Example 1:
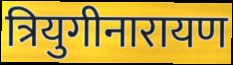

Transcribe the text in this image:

त्रियुगीनारायण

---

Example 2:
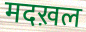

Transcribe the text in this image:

मदख़ल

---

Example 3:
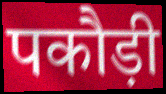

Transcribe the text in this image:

पकौड़ी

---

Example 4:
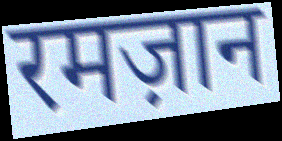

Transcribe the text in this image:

रमज़ान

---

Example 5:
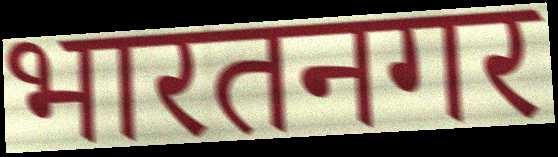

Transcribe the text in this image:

भारतनगर